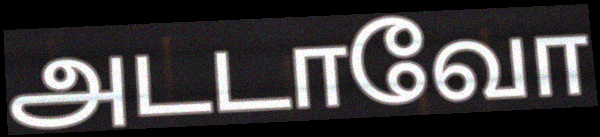
அடடாவோ